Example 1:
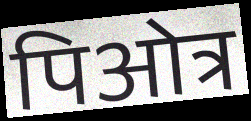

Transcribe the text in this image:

पिओत्र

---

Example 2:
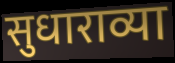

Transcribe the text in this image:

सुधाराव्या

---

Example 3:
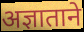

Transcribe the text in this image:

अज्ञाताने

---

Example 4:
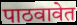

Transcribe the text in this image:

पाठवावेत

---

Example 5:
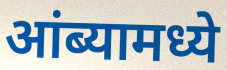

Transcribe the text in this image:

आंब्यामध्ये